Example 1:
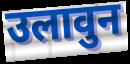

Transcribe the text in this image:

उलावुन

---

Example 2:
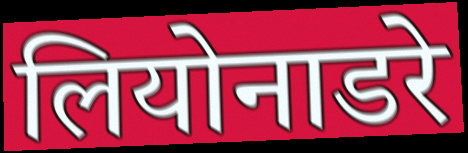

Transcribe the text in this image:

लियोनाडरे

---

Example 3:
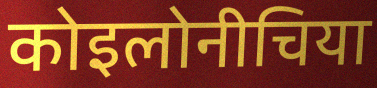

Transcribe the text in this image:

कोइलोनीचिया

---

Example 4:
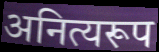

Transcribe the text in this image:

अनित्यरूप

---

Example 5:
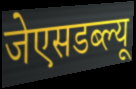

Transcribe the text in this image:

जेएसडब्ल्यू